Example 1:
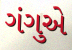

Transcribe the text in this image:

ગંગુએ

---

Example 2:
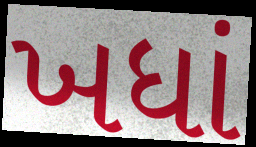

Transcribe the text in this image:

ખધાં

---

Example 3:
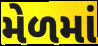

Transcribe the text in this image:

મેળમાં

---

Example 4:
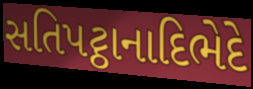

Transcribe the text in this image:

સતિપટ્ઠાનાદિભેદે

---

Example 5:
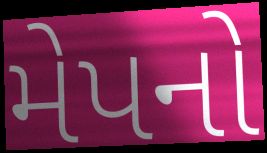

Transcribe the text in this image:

મેપનો